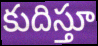
కుదిస్తూ